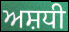
ਅਸ਼ਧੀ